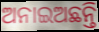
ଅନାଇଅଛନ୍ତି